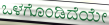
ಒಳಗೊಂಡಿದೆಯೇ